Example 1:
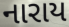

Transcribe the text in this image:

નારાય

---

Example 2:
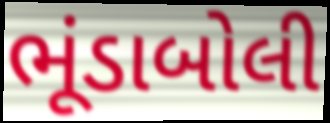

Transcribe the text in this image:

ભૂંડાબોલી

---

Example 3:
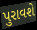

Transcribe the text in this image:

પુરાવશે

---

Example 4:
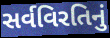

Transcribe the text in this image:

સર્વવિરતિનું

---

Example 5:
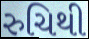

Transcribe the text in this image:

રુચિથી